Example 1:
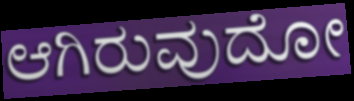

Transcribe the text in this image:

ಆಗಿರುವುದೋ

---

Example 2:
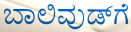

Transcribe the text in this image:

ಬಾಲಿವುಡ್‌ಗೆ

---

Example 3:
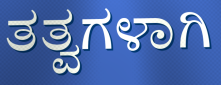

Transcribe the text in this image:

ತತ್ವಗಳಾಗಿ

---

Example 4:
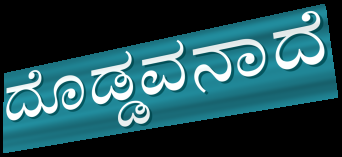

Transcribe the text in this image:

ದೊಡ್ಡವನಾದೆ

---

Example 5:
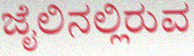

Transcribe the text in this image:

ಜೈಲಿನಲ್ಲಿರುವ